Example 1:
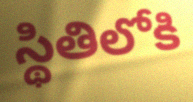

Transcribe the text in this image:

స్థితిలోకి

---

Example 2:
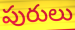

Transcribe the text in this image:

పురులు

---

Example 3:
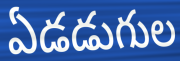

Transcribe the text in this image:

ఏడడుగుల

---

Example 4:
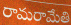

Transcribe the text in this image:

రామరామేతి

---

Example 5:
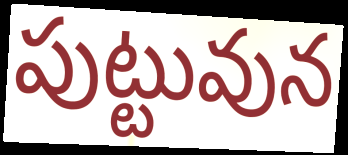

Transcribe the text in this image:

పుట్టువున